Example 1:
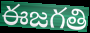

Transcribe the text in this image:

ఈజగతి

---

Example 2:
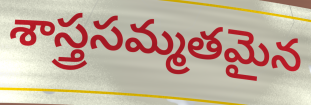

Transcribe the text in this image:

శాస్త్రసమ్మతమైన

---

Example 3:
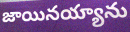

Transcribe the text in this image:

జాయినయ్యాను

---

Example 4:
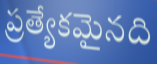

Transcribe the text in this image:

ప్రత్యేకమైనది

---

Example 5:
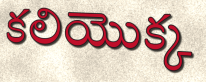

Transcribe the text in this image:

కలియొక్క